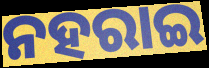
ନହରାଇ